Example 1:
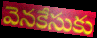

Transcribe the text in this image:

వెనకేసుకు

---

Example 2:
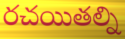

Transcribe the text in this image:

రచయితల్ని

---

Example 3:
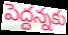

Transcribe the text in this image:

పెద్దన్నకు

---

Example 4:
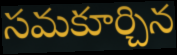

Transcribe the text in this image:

సమకూర్చిన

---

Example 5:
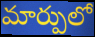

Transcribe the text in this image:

మార్పులో